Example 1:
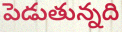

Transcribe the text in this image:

పెడుతున్నది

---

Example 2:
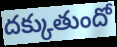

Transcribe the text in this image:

దక్కుతుందో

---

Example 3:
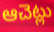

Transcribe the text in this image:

ఆచెట్లు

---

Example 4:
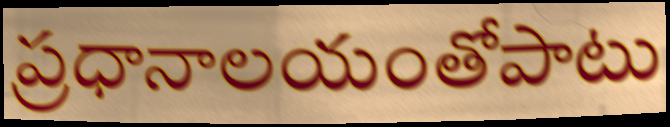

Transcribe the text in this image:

ప్రధానాలయంతోపాటు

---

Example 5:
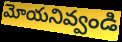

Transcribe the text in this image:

మోయనివ్వండి